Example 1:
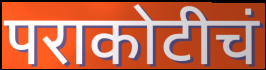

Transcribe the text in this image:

पराकोटीचं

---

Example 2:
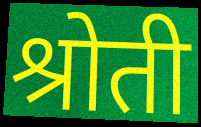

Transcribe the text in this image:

श्रोती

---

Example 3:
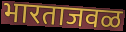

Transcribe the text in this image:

भारताजवळ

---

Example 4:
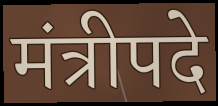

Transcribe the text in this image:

मंत्रीपदे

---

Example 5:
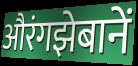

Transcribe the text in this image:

औरंगझेबानें